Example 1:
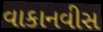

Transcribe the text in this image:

વાકાનવીસ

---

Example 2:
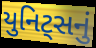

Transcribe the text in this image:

યુનિટ્સનું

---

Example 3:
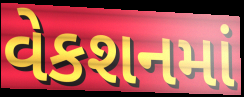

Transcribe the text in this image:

વેકશનમાં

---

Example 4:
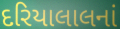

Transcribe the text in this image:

દરિયાલાલનાં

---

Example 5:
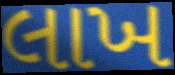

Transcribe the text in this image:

લાખ